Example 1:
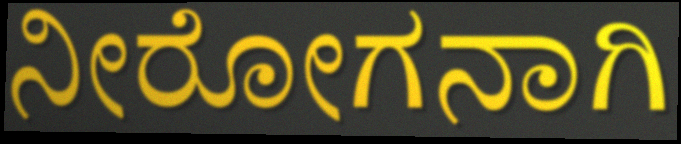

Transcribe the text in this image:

ನೀರೋಗನಾಗಿ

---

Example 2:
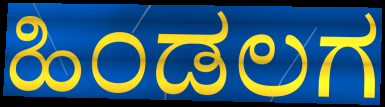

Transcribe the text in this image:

ಹಿಂಡಲಗ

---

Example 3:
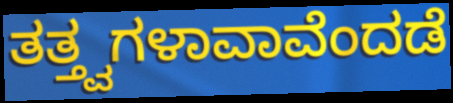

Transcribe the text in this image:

ತತ್ತ್ವಗಳಾವಾವೆಂದಡೆ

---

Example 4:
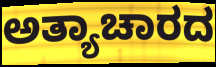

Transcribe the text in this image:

ಅತ್ಯಾಚಾರದ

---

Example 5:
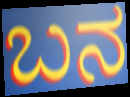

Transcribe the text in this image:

ಬನ